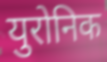
युरोनिक